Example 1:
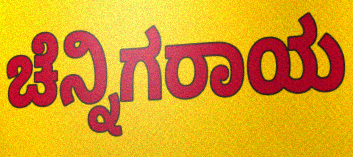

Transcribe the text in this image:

ಚೆನ್ನಿಗರಾಯ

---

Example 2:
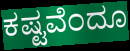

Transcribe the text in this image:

ಕಷ್ಟವೆಂದೂ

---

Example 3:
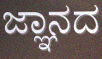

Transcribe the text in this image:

ಜ್ಞಾನದ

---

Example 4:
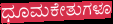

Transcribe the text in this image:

ಧೂಮಕೇತುಗಳೂ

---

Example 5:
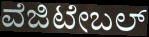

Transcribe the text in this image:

ವೆಜಿಟೇಬಲ್